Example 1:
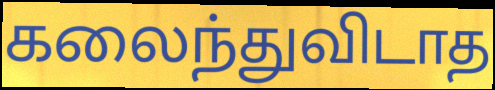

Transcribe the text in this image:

கலைந்துவிடாத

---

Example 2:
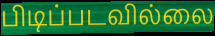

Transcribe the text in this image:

பிடிப்படவில்லை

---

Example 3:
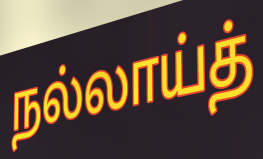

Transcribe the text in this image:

நல்லாய்த்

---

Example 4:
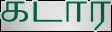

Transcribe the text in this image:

கடார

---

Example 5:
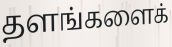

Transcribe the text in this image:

தளங்களைக்